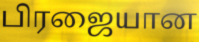
பிரஜையான